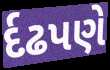
ર્દઢપણે